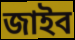
জাইব